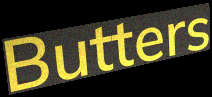
Butters